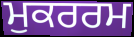
ਮੁਕਰਰਮ